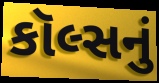
કૉલ્સનું